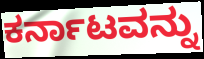
ಕರ್ನಾಟವನ್ನು